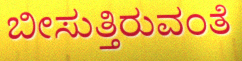
ಬೀಸುತ್ತಿರುವಂತೆ